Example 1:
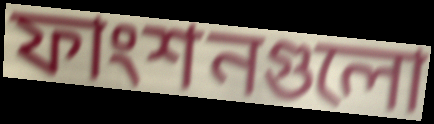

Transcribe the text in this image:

ফাংশনগুলো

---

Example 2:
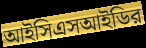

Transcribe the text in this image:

আইসিএসআইডির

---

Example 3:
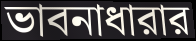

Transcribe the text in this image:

ভাবনাধারার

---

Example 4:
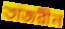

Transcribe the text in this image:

তাজরীন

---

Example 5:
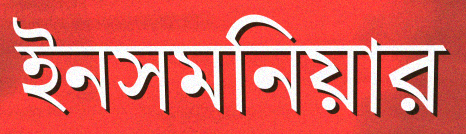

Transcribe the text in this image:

ইনসমনিয়ার